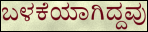
ಬಳಕೆಯಾಗಿದ್ದವು